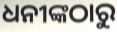
ଧନୀଙ୍କଠାରୁ